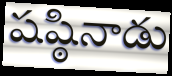
షష్ఠినాడు